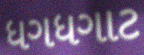
ધગધગાટ